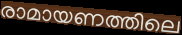
രാമായണത്തിലെ